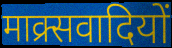
माक्र्सवादियों